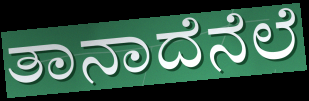
ತಾನಾದೆನೆಲೆ